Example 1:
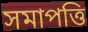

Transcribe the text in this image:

সমাপত্তি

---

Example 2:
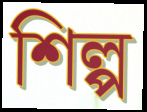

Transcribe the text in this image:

শিল্প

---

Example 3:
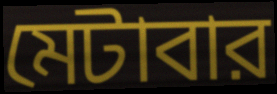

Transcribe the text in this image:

মেটাবার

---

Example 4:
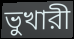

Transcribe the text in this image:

ভুখারী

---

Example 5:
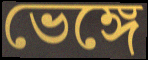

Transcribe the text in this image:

ভেঙ্গে